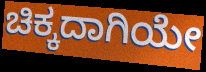
ಚಿಕ್ಕದಾಗಿಯೇ